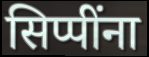
सिप्पींना